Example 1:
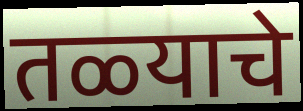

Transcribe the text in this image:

तळ्याचे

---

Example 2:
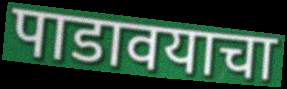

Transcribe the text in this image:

पाडावयाचा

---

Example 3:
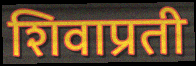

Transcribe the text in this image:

शिवाप्रती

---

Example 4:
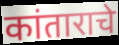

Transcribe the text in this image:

कांताराचे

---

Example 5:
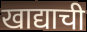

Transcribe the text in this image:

खाद्याची